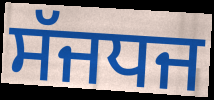
ਸੱਜਧਜ